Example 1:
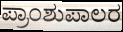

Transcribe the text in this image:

ಪ್ರಾಂಶುಪಾಲರ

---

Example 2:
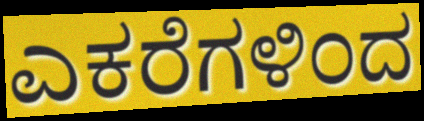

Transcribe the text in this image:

ಎಕರೆಗಳಿಂದ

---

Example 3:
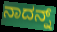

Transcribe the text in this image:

ನಾದನ್ನ್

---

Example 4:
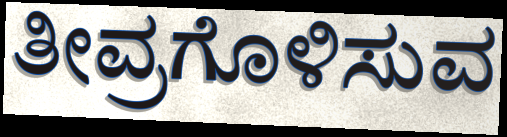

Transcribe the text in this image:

ತೀವ್ರಗೊಳಿಸುವ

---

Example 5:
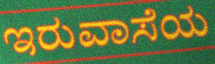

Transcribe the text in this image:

ಇರುವಾಸೆಯ